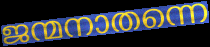
ജന്മനാതന്നെ